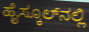
ಹೈಸ್ಕೂಲ್‍ನಲ್ಲಿ